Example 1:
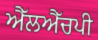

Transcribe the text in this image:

ਐੱਲਐੱਚਪੀ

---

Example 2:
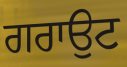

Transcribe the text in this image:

ਗਰਾਉਟ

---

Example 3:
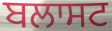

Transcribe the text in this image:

ਬਲਾਸਟ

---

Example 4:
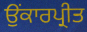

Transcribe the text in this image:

ਉਂਕਾਰਪ੍ਰੀਤ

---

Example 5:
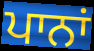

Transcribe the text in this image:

ਪਾਨਾਂ